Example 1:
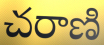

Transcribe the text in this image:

చరాణి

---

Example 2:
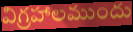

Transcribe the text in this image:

విగ్రహాలముందు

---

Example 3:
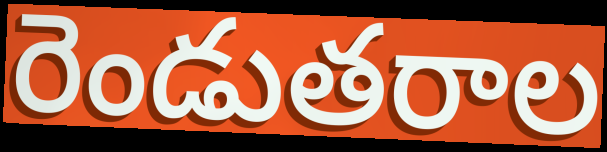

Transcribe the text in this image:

రెండుతరాల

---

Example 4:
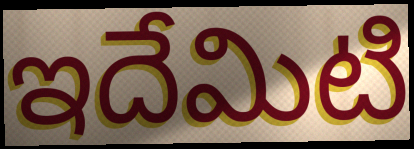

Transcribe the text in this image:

ఇదేమిటి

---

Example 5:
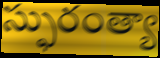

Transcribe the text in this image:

స్ఫురంత్యా